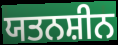
ਯਤਨਸ਼ੀਨ